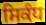
ਸਿਕੰਧ